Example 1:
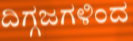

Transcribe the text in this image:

ದಿಗ್ಗಜಗಳಿಂದ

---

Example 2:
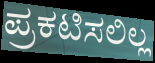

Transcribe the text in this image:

ಪ್ರಕಟಿಸಲಿಲ್ಲ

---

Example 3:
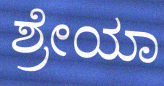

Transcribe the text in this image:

ಶ್ರೇಯಾ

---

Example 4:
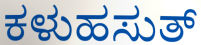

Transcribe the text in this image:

ಕಳುಹಸುತ್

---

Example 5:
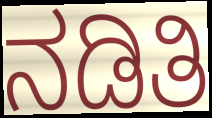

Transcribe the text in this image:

ನಡಿತಿ